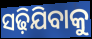
ସଢ଼ିଯିବାକୁ